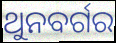
ଥୁନବର୍ଗର